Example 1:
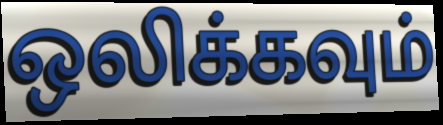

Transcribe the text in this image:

ஒலிக்கவும்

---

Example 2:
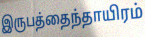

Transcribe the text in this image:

இருபத்தைந்தாயிரம்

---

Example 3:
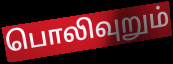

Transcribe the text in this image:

பொலிவுறும்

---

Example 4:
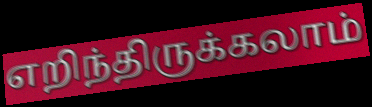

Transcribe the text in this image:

எறிந்திருக்கலாம்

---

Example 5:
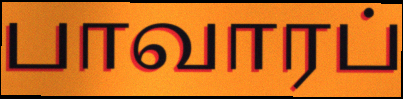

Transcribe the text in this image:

பாவாரப்